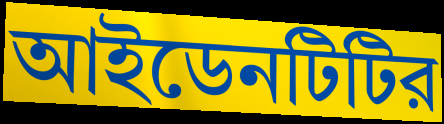
আইডেনটিটির